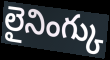
లైనింగ్కు